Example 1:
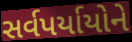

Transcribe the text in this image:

સર્વપર્યાયોને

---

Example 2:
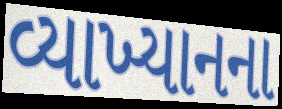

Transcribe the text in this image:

વ્યાખ્યાનના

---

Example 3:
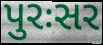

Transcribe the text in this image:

પુરઃસર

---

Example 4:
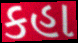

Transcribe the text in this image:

કહા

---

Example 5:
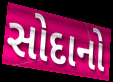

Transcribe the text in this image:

સોદાનો